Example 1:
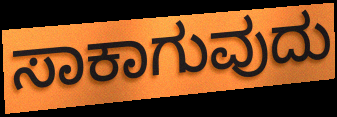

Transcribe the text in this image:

ಸಾಕಾಗುವುದು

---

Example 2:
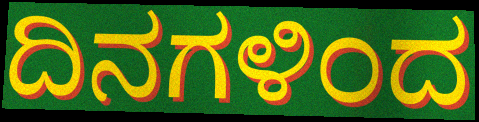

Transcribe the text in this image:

ದಿನಗಳಿಂದ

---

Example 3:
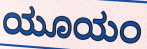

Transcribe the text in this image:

ಯೂಯಂ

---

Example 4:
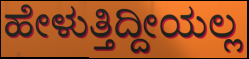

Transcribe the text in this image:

ಹೇಳುತ್ತಿದ್ದೀಯಲ್ಲ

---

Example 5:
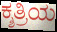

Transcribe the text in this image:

ಕ್ಶತ್ರಿಯ